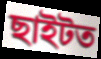
ছাইটত